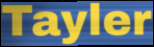
Tayler